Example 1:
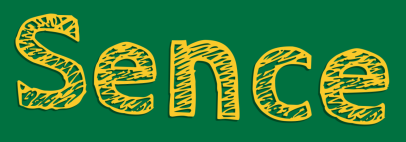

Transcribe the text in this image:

Sence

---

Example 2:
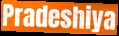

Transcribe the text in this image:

Pradeshiya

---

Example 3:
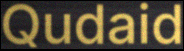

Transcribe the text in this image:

Qudaid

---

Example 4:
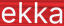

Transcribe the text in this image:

ekka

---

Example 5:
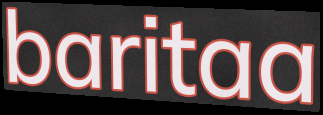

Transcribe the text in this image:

baritaa